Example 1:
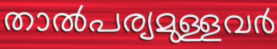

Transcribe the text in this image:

താൽപര്യമുള്ളവർ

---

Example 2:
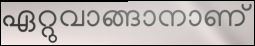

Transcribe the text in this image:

ഏറ്റുവാങ്ങാനാണ്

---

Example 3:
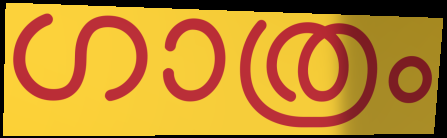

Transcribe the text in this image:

ഗാത്രം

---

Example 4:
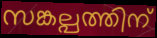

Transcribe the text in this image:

സങ്കല്പത്തിന്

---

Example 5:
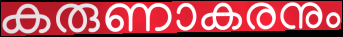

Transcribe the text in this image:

കരുണാകരനും